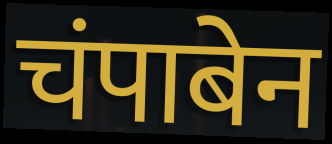
चंपाबेन